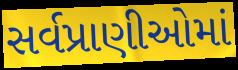
સર્વપ્રાણીઓમાં